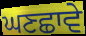
ਘਣਛਾਵੇ